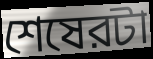
শেষেরটা